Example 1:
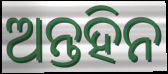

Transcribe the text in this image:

ଅନ୍ତହିନ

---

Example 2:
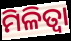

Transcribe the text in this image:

ମିଳିତ୍ଵା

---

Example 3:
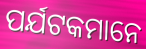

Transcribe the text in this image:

ପର୍ଯଟକମାନେ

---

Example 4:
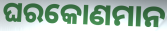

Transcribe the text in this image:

ଘରକୋଣମାନ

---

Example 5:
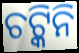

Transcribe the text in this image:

ଚଟ୍କିନି